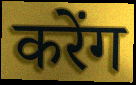
करेंग